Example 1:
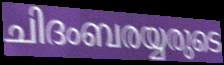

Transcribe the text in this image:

ചിദംബരയ്യരുടെ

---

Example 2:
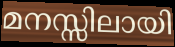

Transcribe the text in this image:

മനസ്സിലായി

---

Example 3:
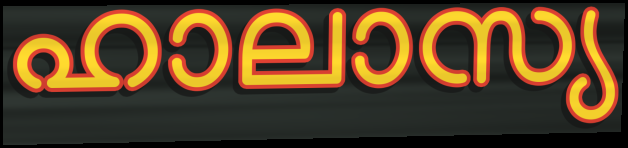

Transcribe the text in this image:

ഹാലാസ്യ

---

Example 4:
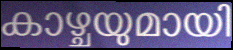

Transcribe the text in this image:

കാഴ്ചയുമായി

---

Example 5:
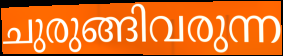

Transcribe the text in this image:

ചുരുങ്ങിവരുന്ന